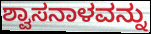
ಶ್ವಾಸನಾಳವನ್ನು